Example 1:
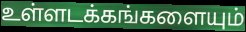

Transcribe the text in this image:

உள்ளடக்கங்களையும்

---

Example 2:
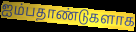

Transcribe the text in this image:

ஐம்பதாண்டுகளாக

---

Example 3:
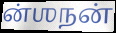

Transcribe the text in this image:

ன்ஶநன்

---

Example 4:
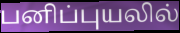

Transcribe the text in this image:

பனிப்புயலில்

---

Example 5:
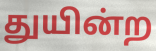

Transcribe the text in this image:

துயின்ற